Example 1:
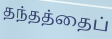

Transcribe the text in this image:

தந்தத்தைப்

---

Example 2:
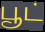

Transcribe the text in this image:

பூட்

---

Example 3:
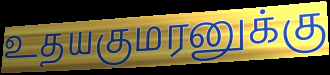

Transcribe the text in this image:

உதயகுமரனுக்கு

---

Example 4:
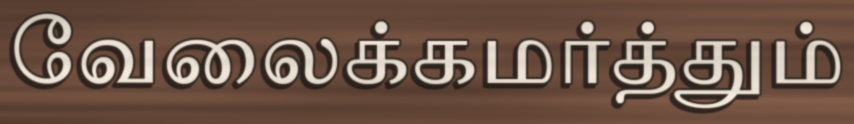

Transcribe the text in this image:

வேலைக்கமர்த்தும்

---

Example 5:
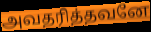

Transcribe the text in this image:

அவதரித்தவனே